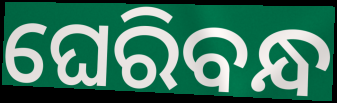
ଘେରିବନ୍ଧ